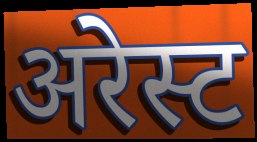
अरेस्ट